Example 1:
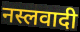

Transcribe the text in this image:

नस्लवादी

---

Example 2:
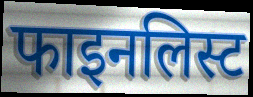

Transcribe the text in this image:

फाइनलिस्ट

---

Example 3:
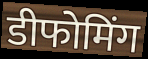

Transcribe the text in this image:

डीफोमिंग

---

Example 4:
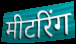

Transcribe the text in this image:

मीटरिंग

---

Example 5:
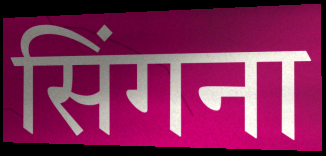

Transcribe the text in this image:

सिंगना